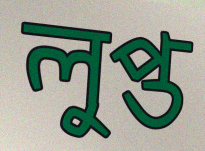
লুপ্ত